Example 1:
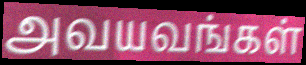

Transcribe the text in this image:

அவயவங்கள்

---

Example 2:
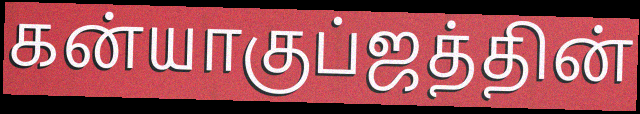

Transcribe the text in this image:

கன்யாகுப்ஜத்தின்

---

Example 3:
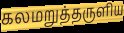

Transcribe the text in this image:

கலமறுத்தருளிய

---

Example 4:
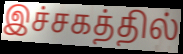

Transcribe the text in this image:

இச்சகத்தில்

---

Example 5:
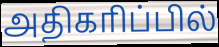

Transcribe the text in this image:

அதிகரிப்பில்